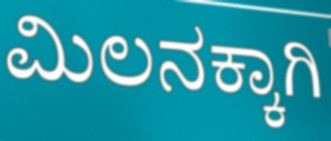
ಮಿಲನಕ್ಕಾಗಿ